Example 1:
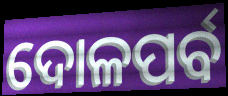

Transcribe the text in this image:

ଦୋଳପର୍ବ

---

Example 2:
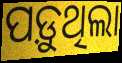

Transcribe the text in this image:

ପଡ଼ୁଥିଲା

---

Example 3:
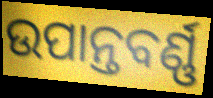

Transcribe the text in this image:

ଉପାନ୍ତବର୍ଣ୍ଣ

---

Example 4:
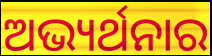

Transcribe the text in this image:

ଅଭ୍ୟର୍ଥନାର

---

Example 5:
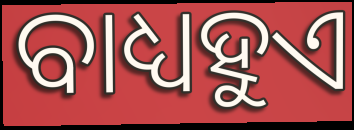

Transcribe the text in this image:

ବାଧ୍ୟହୁଏ